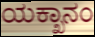
ಯಕ್ಖಾನಂ